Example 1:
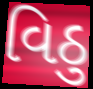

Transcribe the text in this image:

વિઠુ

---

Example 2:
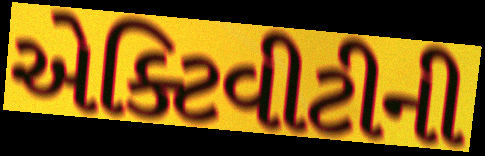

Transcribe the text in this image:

એક્ટિવીટીની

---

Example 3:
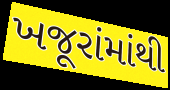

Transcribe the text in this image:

ખજૂરાંમાંથી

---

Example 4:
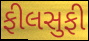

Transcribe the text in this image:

ફીલસુફી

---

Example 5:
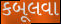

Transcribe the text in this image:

કબૂલવા